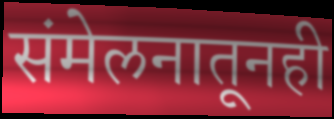
संमेलनातूनही